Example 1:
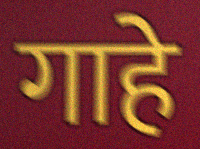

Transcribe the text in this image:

गाहे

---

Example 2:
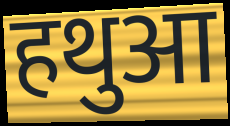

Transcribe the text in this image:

हथुआ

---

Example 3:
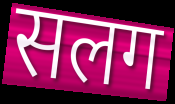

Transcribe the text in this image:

सलग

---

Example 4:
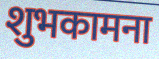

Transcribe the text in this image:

शुभकामना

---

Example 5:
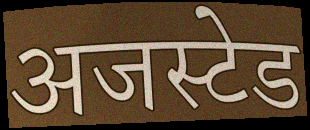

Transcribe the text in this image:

अजस्टेड